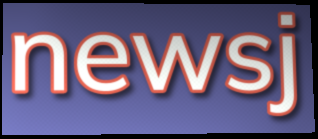
newsj